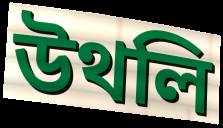
উথলি